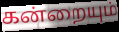
கன்றையும்